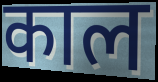
काल